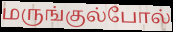
மருங்குல்போல்